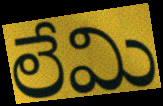
లేమి